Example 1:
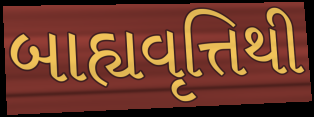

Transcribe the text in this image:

બાહ્યવૃત્તિથી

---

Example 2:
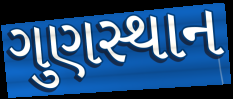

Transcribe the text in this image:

ગુણસ્થાન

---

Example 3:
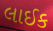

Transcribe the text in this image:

લાઈક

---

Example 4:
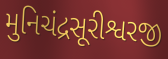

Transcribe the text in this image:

મુનિચંદ્રસૂરીશ્વરજી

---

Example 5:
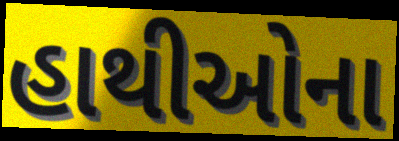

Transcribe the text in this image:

હાથીઓના